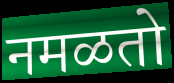
नमळतो